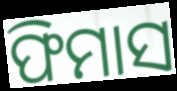
ଫିମାସ